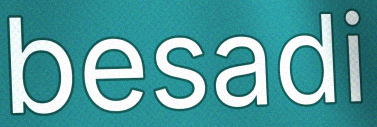
besadi